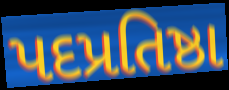
પદપ્રતિષ્ઠા